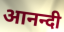
आनन्दी